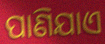
ପାଣିଯାଏ